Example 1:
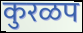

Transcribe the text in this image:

कुरळप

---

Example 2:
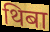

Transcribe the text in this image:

थिबा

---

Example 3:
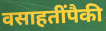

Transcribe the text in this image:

वसाहतींपैकी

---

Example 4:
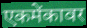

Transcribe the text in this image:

एकमेंकावर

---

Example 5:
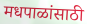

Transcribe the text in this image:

मधपाळांसाठी